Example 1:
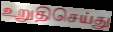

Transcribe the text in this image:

உறுதிசெய்து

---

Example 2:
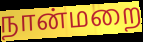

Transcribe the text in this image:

நான்மறை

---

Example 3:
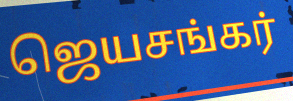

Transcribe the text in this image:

ஜெயசங்கர்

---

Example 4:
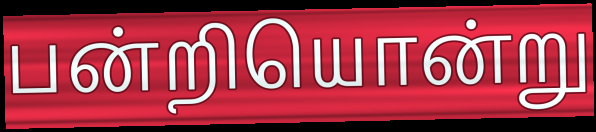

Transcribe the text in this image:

பன்றியொன்று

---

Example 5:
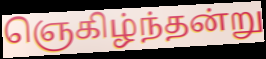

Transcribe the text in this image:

ஞெகிழ்ந்தன்று